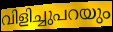
വിളിച്ചുപറയും